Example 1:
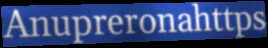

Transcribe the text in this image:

Anupreronahttps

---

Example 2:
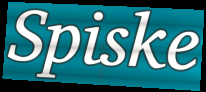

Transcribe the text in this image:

Spiske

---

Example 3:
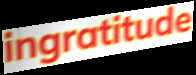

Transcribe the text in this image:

ingratitude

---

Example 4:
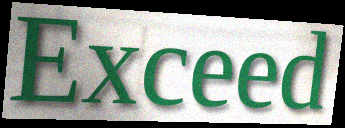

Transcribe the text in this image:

Exceed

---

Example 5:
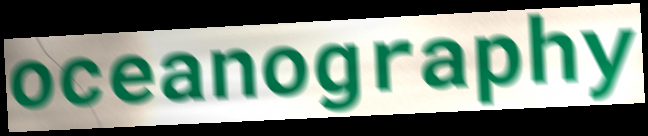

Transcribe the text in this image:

oceanography